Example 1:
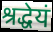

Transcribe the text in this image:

श्रद्धेयं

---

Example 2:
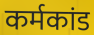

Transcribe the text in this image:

कर्मकांड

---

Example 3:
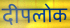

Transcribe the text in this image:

दीपलोक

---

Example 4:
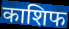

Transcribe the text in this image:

काशिफ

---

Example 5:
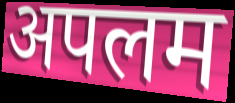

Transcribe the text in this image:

अपलम